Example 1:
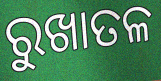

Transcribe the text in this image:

ରୁଖାତଳ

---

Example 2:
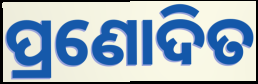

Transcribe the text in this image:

ପ୍ରଣୋଦିତ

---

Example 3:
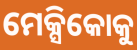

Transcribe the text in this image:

ମେକ୍ସିକୋକୁ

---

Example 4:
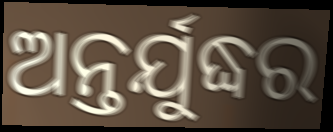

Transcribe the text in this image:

ଅନ୍ତର୍ଯୁଦ୍ଧର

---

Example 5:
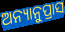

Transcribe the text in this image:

ଅନ୍ୟାନୁପ୍ରାସ